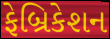
ફેબ્રિકેશન